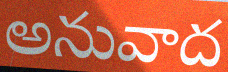
అనువాద